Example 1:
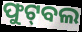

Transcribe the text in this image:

ଫୁଟ୍‌ବଲ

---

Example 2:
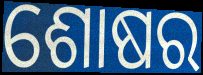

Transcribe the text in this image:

ଶୋଷର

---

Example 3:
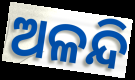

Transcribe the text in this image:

ଅଳନ୍ଦି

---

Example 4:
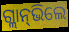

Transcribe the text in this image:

ଗ୍ଲାନ୍‌ଭିଲେ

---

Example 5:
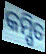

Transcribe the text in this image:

କମ୍ପିତ